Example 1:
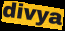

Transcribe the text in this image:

divya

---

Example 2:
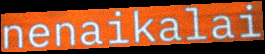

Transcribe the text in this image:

nenaikalai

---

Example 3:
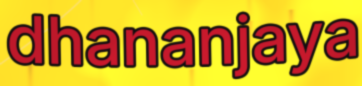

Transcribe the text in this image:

dhananjaya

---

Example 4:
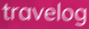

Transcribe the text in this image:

travelog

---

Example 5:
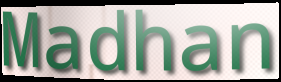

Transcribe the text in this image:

Madhan